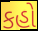
કહો